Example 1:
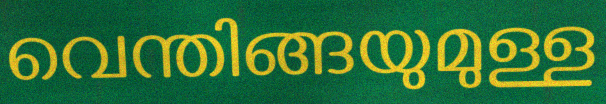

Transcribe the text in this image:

വെന്തിങ്ങയുമുള്ള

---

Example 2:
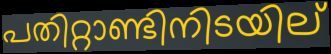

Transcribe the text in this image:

പതിറ്റാണ്ടിനിടയില്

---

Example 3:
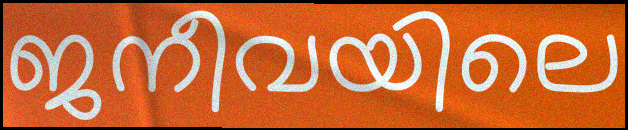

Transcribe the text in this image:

ജനീവയിലെ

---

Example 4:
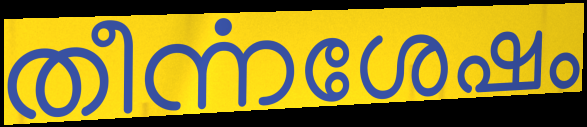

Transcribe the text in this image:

തീൎന്നശേഷം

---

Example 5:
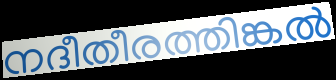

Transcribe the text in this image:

നദീതീരത്തിങ്കൽ